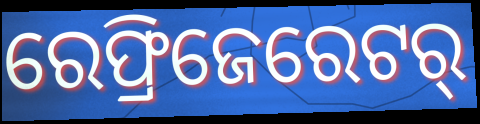
ରେଫ୍ରିଜେରେଟର୍